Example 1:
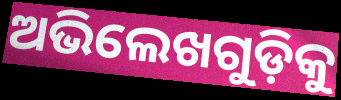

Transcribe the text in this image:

ଅଭିଲେଖଗୁଡ଼ିକୁ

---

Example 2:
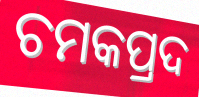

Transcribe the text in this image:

ଚମକପ୍ରଦ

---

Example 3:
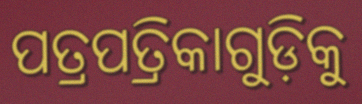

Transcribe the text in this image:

ପତ୍ରପତ୍ରିକାଗୁଡ଼ିକୁ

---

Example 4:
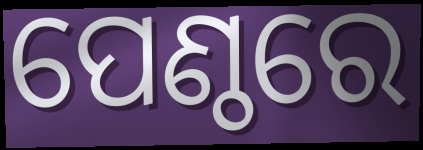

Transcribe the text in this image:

ପେଣ୍ଠରେ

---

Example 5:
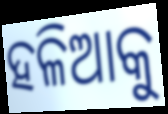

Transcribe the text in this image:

ହଳିଆକୁ